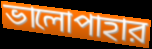
ভালোপাহার